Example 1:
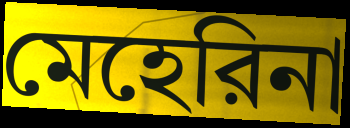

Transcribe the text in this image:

মেহেরিনা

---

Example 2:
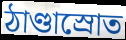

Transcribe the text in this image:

ঠাণ্ডাস্রোত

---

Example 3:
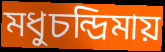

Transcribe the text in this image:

মধুচন্দ্রিমায়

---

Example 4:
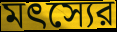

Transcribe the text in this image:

মৎস্যের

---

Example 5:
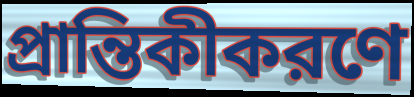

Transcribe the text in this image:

প্রান্তিকীকরণে